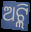
ଅଟ୍ଲି